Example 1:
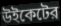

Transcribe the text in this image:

উইকেটের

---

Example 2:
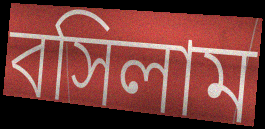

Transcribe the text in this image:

বসিলাম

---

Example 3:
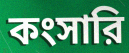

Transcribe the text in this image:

কংসারি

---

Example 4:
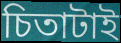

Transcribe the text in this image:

চিতাটাই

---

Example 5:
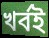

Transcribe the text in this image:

খর্বই